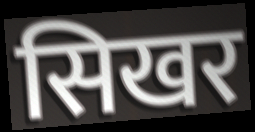
सिखर